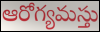
ఆరోగ్యమస్తు